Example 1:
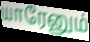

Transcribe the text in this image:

யாரேனும்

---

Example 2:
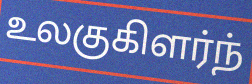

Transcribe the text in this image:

உலகுகிளர்ந்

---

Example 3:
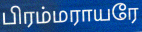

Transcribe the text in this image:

பிரம்மராயரே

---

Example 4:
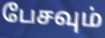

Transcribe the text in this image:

பேசவும்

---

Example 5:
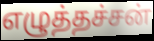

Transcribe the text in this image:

எழுத்தச்சன்